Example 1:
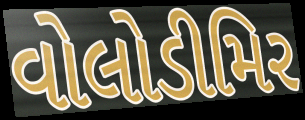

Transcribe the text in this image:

વોલોડીમિર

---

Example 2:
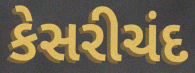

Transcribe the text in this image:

કેસરીચંદ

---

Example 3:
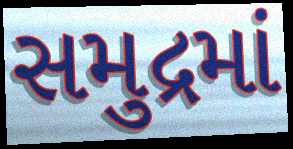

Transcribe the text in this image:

સમુદ્રમાં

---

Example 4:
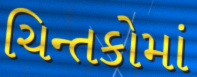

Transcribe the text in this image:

ચિન્તકોમાં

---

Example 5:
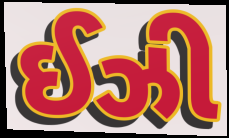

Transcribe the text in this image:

ઈઝી